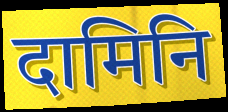
दामिनि